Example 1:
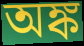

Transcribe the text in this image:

অঙ্ক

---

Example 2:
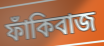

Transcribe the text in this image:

ফাঁকিবাজ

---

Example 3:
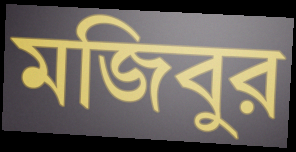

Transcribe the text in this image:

মজিবুর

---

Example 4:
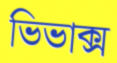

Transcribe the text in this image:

ভিভাক্স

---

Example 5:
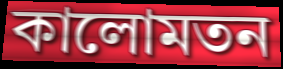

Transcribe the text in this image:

কালোমতন